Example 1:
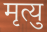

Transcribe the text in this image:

मृत्यु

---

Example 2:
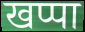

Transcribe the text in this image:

खप्पा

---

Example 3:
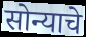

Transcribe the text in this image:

सोन्याचे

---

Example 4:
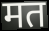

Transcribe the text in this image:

मत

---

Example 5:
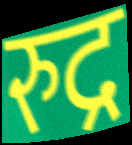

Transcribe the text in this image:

रुद्र